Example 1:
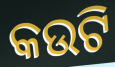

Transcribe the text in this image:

କଉଟି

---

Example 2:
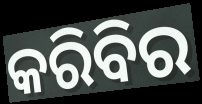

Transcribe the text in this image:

କରିବିର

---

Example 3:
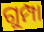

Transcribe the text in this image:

ଗୁମ୍ପା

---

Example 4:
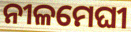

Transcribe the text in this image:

ନୀଳମେଘୀ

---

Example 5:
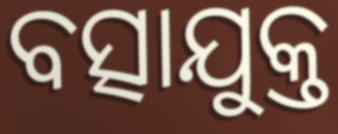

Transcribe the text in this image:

ବତ୍ସାଯୁକ୍ତ